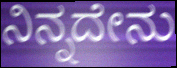
ನಿನ್ನದೇನು